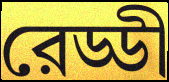
রেড্ডী